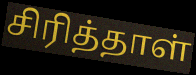
சிரித்தாள்